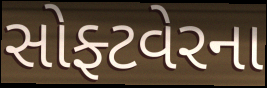
સોફ્ટવેરના